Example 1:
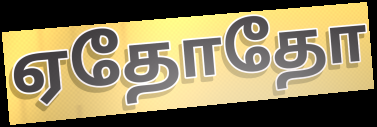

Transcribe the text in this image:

ஏதோதோ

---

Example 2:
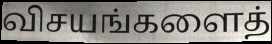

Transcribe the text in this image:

விசயங்களைத்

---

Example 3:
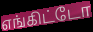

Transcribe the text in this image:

எங்கிட்டோ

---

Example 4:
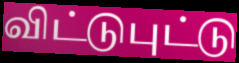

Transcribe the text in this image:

விட்டுபுட்டு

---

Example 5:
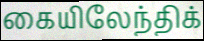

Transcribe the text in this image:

கையிலேந்திக்